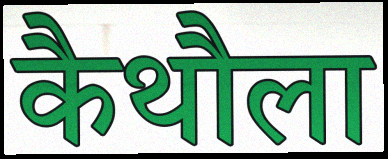
कैथौला